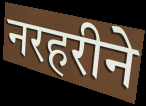
नरहरीने